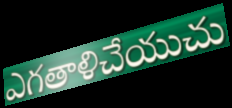
ఎగతాళిచేయుచు